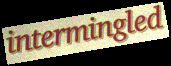
intermingled